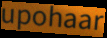
upohaar